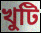
খুটি